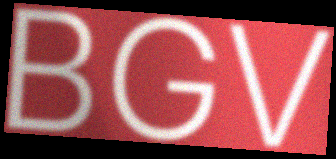
BGV